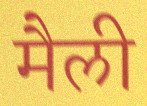
मैली